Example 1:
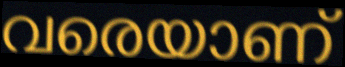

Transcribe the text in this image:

വരെയാണ്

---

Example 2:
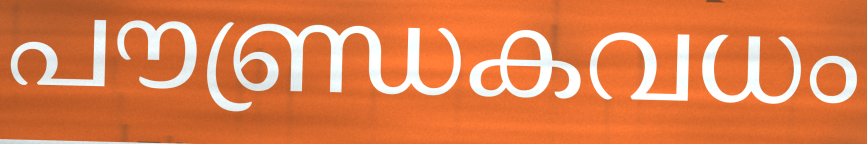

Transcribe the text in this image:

പൗണ്ഡ്രകവധം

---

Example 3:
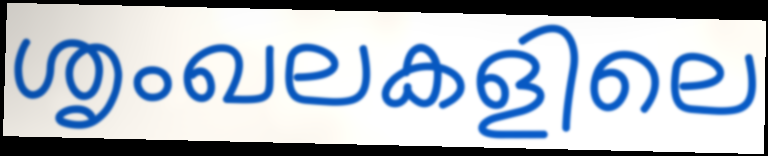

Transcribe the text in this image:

ശൃംഖലകളിലെ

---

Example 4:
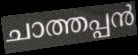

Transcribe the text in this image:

ചാത്തപ്പൻ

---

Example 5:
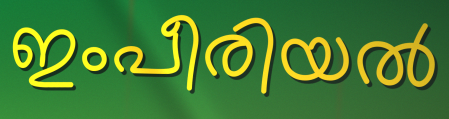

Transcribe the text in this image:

ഇംപീരിയൽ